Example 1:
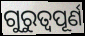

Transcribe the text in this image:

ଗୁରୁତ୍ୱପୂର୍ଣ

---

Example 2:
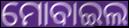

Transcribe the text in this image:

ମୋବାଇଲ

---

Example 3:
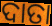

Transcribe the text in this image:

ଦାତା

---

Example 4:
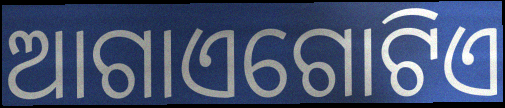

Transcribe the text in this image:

ଆଗାଏଗୋଟିଏ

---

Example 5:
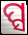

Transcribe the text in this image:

ପ୍ସ